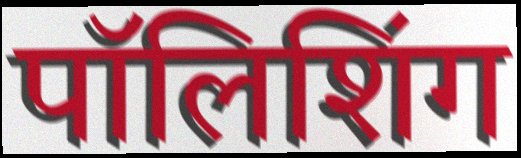
पॉलिशिंग